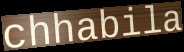
chhabila